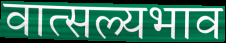
वात्सल्यभाव